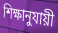
শিক্ষানুযায়ী